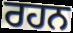
ਰਹਨ